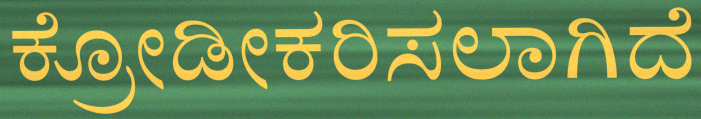
ಕ್ರೋಡೀಕರಿಸಲಾಗಿದೆ